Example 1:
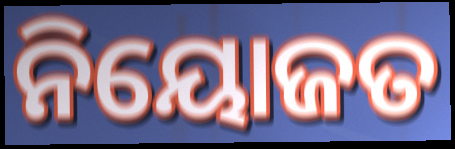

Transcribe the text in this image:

ନିୟୋଜତ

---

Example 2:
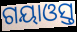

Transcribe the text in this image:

ଗୟାଓସ୍ତ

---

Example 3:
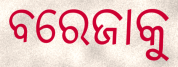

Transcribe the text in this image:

ବରେଜାକୁ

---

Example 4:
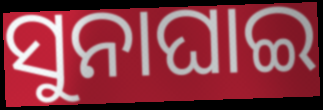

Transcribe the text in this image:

ସୁନାଘାଇ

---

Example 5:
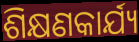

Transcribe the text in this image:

ଶିକ୍ଷଣକାର୍ଯ୍ୟ